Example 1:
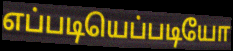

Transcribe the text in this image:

எப்படியெப்படியோ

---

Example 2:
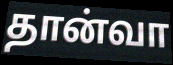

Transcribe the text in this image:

தான்வா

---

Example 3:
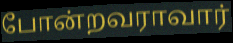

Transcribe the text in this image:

போன்றவராவார்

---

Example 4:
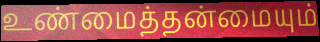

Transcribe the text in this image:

உண்மைத்தன்மையும்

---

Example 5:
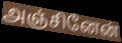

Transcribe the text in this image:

அஞ்சினேன்